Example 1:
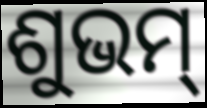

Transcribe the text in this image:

ଶୁଭମ୍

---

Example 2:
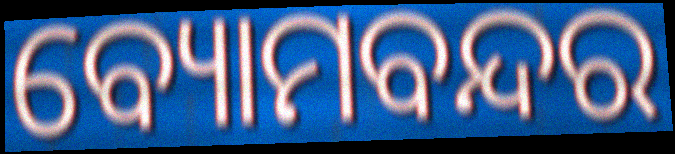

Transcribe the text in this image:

ବ୍ୟୋମବନ୍ଦର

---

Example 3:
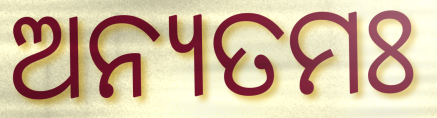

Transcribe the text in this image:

ଅନ୍ୟତମଃ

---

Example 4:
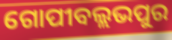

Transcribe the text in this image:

ଗୋପୀବଲ୍ଲଭପୁର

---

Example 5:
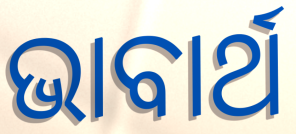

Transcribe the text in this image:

ଭାବାର୍ଥ